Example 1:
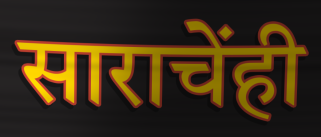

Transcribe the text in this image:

साराचेंही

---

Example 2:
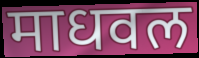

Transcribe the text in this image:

माधवल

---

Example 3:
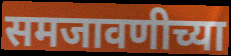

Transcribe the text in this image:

समजावणीच्या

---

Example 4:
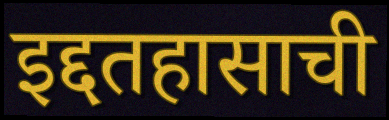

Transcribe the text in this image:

इद्दतहासाची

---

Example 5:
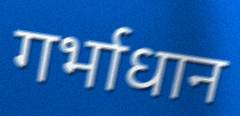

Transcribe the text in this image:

गर्भाधान